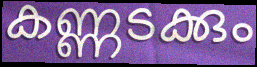
കണ്ണടക്കും